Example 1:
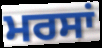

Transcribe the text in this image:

ਮਰਸਾਂ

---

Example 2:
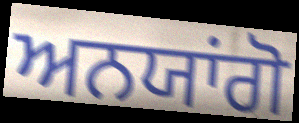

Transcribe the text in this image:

ਅਨਯਾਂਗੋ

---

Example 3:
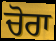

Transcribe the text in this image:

ਚੋਰਾ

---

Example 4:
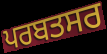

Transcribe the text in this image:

ਪਰਬਤਸਰ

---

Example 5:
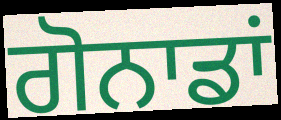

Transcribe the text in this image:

ਗੋਨਾਡਾਂ